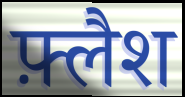
फ़्लैश